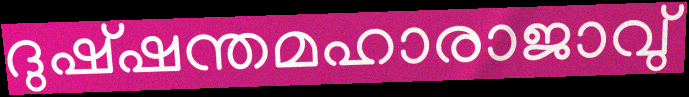
ദുഷ്ഷന്തമഹാരാജാവു്